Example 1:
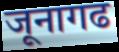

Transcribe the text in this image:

जूनागढ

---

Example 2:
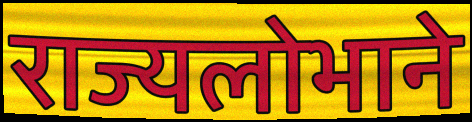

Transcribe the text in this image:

राज्यलोभाने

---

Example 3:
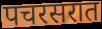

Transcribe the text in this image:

पचरसरात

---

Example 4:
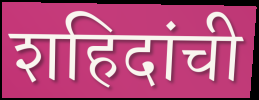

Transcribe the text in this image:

शहिदांची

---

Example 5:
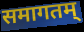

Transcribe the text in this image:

समागतम्